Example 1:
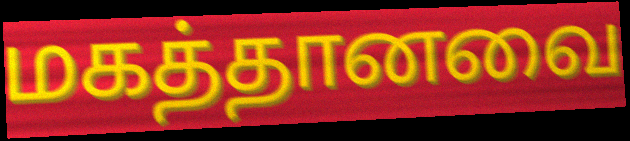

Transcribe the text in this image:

மகத்தானவை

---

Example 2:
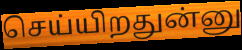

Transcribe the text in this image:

செய்யிறதுன்னு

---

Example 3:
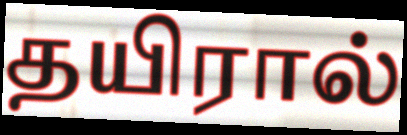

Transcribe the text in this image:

தயிரால்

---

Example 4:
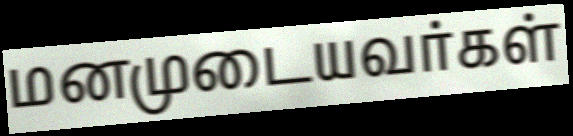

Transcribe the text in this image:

மனமுடையவர்கள்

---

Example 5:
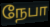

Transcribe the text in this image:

நேபா